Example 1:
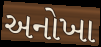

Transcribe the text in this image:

અનોખા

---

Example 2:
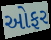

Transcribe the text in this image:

ઓફર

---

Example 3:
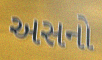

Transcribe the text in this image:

અસનો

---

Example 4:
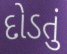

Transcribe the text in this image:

દોડતું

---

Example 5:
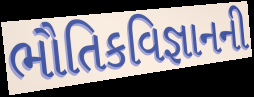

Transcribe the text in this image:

ભૌતિકવિજ્ઞાનની